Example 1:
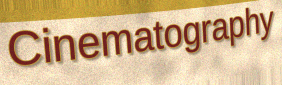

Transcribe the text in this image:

Cinematography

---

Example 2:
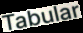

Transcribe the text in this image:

Tabular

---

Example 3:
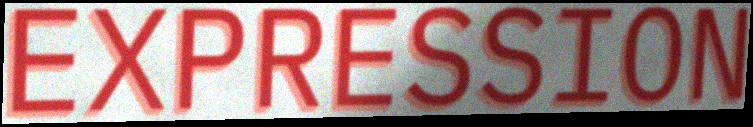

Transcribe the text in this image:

EXPRESSION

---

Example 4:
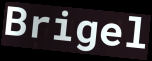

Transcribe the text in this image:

Brigel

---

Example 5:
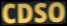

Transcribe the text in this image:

CDSO